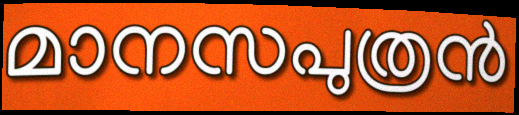
മാനസപുത്രൻ